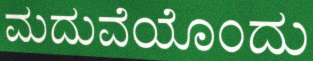
ಮದುವೆಯೊಂದು